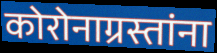
कोरोनाग्रस्तांना